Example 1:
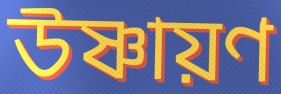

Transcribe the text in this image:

উষ্ণায়ণ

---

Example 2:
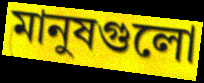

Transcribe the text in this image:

মানুষগুলো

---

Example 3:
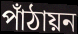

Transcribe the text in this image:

পাঁঠায়ন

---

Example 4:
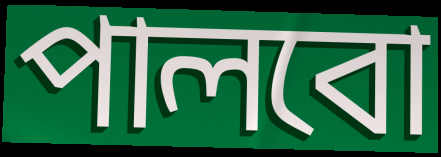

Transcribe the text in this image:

পালবো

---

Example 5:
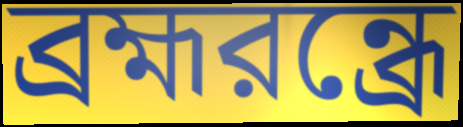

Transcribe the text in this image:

ব্রহ্মরন্ধ্রে